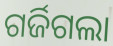
ଗର୍ଜିଗଲା